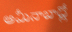
అమీనాబాద్లో